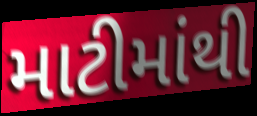
માટીમાંથી